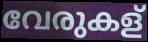
വേരുകള്